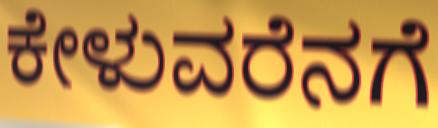
ಕೇಳುವರೆನಗೆ